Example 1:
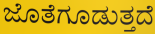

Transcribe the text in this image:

ಜೊತೆಗೂಡುತ್ತದೆ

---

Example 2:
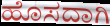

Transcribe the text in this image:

ಹೊಸದಾಗಿ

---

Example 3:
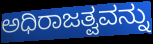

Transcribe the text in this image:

ಅಧಿರಾಜತ್ವವನ್ನು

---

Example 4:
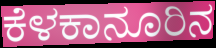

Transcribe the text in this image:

ಕೆಳಕಾನೂರಿನ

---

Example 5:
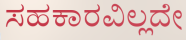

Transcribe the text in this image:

ಸಹಕಾರವಿಲ್ಲದೇ